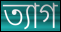
ত্যাগ